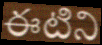
ఈటిని